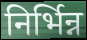
निर्भिन्न